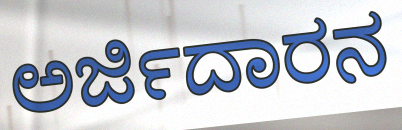
ಅರ್ಜಿದಾರನ